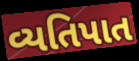
વ્યતિપાત